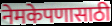
नेमकेपणासाठी